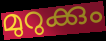
മുറുക്കും